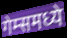
गेम्समध्ये